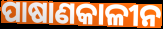
ପାଷାଣକାଳୀନ